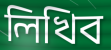
লিখিব